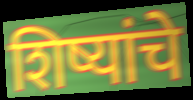
शिष्यांचे